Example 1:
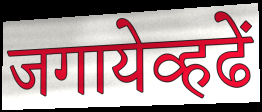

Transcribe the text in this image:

जगायेव्हढें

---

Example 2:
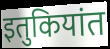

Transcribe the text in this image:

इतुकियांत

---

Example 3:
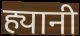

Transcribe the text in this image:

ह्यानी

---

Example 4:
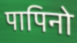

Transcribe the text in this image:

पापिनो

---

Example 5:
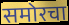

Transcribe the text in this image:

समोरचा